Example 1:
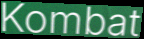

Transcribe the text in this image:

Kombat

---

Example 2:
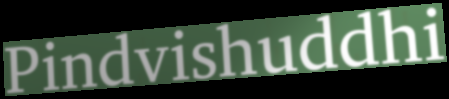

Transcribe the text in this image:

Pindvishuddhi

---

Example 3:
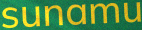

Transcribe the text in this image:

sunamu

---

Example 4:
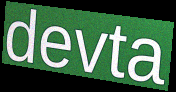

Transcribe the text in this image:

devta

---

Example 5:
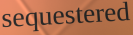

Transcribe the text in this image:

sequestered